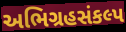
અભિગ્રહસંકલ્પ